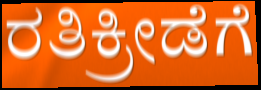
ರತಿಕ್ರೀಡೆಗೆ